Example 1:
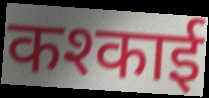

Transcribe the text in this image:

कश्काई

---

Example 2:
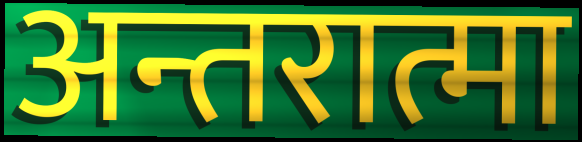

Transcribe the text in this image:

अन्तरात्मा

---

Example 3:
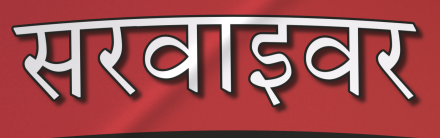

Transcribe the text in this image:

सरवाइवर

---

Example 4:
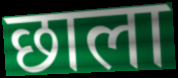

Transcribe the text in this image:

छाला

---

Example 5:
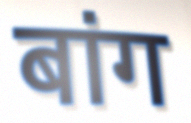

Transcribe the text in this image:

बांग